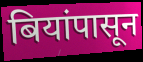
बियांपासून